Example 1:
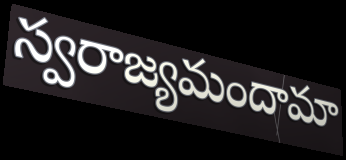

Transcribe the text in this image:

స్వరాజ్యమందామా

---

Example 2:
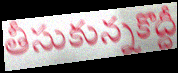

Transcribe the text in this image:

తీసుకున్నకొద్దీ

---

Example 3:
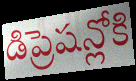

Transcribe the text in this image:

డిప్రెషన్లోకి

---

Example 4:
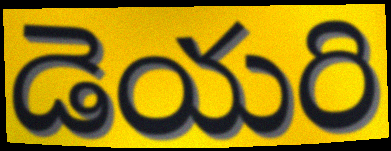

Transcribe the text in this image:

డెయరి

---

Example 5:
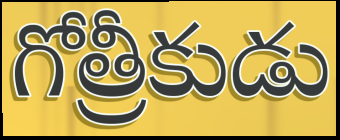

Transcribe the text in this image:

గోత్రీకుడు